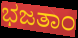
ಭಜತಾಂ